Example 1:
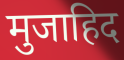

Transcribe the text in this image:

मुजाहिद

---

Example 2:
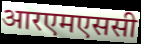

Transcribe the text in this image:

आरएमएससी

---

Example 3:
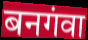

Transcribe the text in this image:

बनगंवा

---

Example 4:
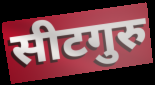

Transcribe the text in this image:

सीटगुरु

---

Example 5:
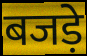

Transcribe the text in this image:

बजड़े